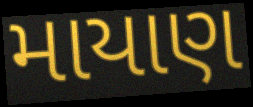
માયાણ